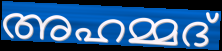
അഹമ്മദ്